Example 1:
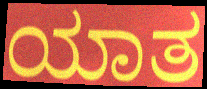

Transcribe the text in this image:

ಯಾತ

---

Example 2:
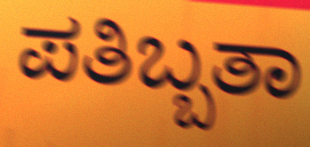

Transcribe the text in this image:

ಪತಿಬ್ಬತಾ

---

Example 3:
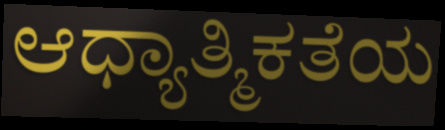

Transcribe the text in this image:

ಆಧ್ಯಾತ್ಮಿಕತೆಯ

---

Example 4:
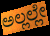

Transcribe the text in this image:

ಅಲ್ಲಲ್ಲೇ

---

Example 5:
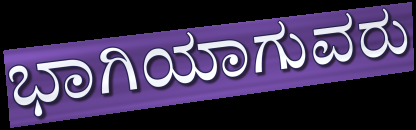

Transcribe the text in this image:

ಭಾಗಿಯಾಗುವರು